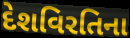
દેશવિરતિના